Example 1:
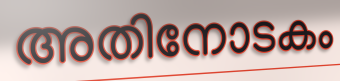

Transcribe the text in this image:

അതിനോടകം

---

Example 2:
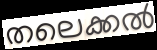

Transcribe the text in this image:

തലെക്കൽ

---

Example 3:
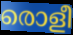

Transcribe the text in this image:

രൊളീ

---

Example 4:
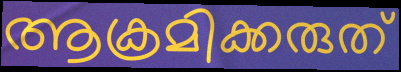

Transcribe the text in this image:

ആക്രമിക്കരുത്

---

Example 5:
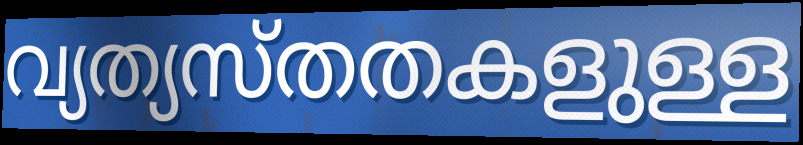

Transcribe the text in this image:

വ്യത്യസ്തതകളുള്ള